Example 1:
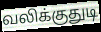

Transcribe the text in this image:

வலிக்குதுடி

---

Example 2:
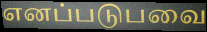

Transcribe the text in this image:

எனப்படுபவை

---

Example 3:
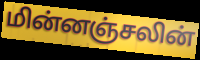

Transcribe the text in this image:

மின்னஞ்சலின்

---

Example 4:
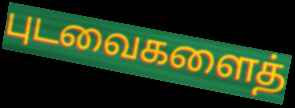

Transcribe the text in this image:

புடவைகளைத்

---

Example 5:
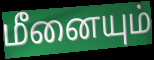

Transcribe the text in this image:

மீனையும்